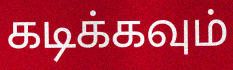
கடிக்கவும்